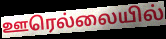
ஊரெல்லையில்